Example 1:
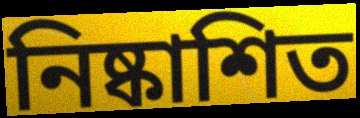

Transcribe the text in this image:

নিষ্কাশিত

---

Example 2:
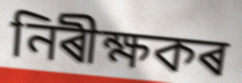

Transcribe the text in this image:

নিৰীক্ষকৰ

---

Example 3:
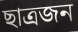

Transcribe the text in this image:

ছাত্ৰজন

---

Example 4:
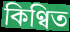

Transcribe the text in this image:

কিণ্বিত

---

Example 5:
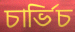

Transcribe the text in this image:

চাৰ্ভিচ